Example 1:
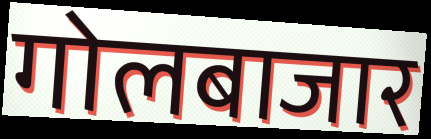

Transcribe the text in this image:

गोलबाजार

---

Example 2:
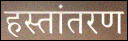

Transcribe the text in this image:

हस्तांतरण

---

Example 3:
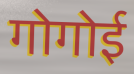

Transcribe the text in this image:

गोगोई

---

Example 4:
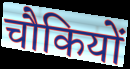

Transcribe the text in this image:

चौकियों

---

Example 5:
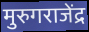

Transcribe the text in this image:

मुरुगराजेंद्र